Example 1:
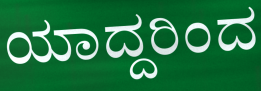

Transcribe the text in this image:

ಯಾದ್ದರಿಂದ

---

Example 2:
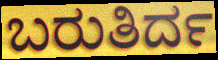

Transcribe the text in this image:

ಬರುತಿರ್ದ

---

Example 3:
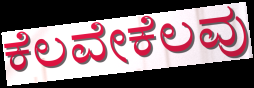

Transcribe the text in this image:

ಕೆಲವೇಕೆಲವು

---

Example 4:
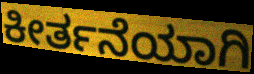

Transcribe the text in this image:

ಕೀರ್ತನೆಯಾಗಿ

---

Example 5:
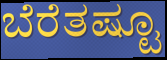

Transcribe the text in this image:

ಬೆರೆತಷ್ಟೂ